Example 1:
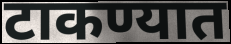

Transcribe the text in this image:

टाकण्यात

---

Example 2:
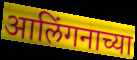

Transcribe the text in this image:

आलिंगनाच्या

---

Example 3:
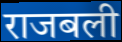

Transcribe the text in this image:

राजबली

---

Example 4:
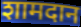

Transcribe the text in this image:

शामदान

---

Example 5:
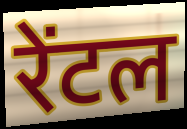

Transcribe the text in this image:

रेंटल